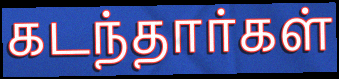
கடந்தார்கள்